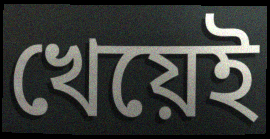
খেয়েই